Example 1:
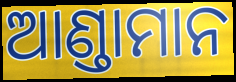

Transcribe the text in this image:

ଆଣ୍ଡାମାନ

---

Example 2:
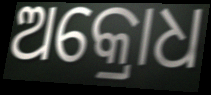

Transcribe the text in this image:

ଅକ୍ରୋଧ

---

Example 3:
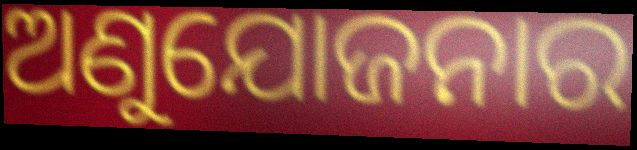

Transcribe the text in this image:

ଅଣୁଯୋଜନାର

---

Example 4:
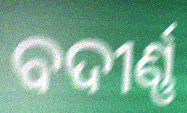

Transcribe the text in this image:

ବଦୀର୍ଣ୍ଣ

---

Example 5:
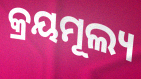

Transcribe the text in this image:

କ୍ରୟମୂଲ୍ୟ